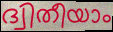
ദ്വിതീയാം